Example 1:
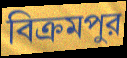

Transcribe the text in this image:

বিক্রমপুর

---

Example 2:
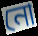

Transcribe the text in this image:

নো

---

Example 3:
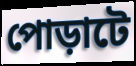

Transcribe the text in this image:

পোড়াটে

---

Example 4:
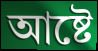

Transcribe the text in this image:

আষ্টে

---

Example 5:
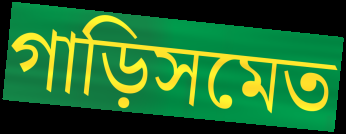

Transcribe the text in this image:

গাড়িসমেত